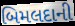
બિમલદાની